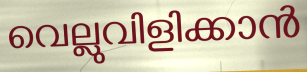
വെല്ലുവിളിക്കാൻ